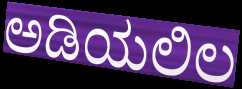
ಅಡಿಯಲಿಲ